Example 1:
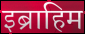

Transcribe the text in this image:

इब्राहिम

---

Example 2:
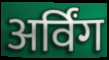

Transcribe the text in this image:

अर्विंग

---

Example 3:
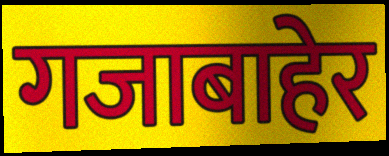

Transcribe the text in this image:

गजाबाहेर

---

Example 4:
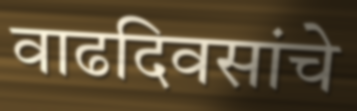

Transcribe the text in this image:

वाढदिवसांचे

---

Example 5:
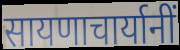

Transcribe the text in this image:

सायणाचार्यानीं